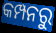
କମ୍ପନରୁ